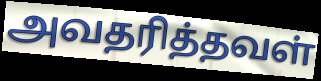
அவதரித்தவள்